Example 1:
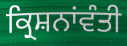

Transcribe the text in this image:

ਕ੍ਰਿਸ਼ਨਾਂਵੰਤੀ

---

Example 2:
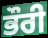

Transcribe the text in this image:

ਭੌਰੀ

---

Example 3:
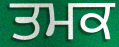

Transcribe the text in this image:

ਤਮਕ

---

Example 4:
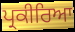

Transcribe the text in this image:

ਪ੍ਰਕੀਰਿਆ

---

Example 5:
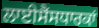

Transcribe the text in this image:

ਲਾਈਸੈਂਸਧਾਰਕਾਂ